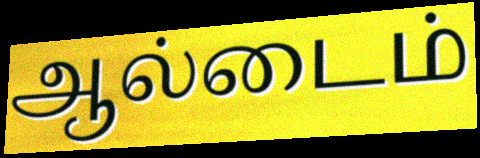
ஆல்டைம்